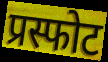
प्रस्फोट